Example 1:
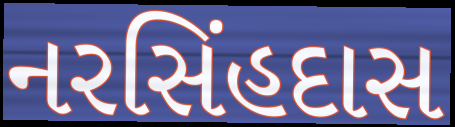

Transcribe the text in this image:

નરસિંહદાસ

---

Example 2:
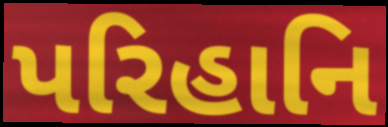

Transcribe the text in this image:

પરિહાનિ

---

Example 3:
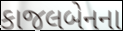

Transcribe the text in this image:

કાજલબેનના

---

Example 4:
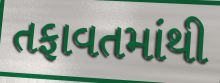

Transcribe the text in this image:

તફાવતમાંથી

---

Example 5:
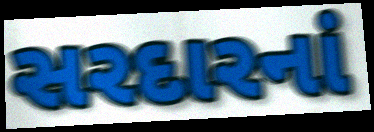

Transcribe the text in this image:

સરદારનાં